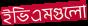
ইভিএমগুলো